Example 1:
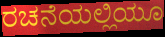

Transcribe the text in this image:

ರಚನೆಯಲ್ಲಿಯೂ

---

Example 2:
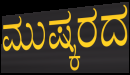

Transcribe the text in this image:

ಮುಷ್ಕರದ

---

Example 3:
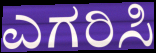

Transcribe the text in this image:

ಎಗರಿಸಿ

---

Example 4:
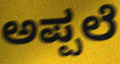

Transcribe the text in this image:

ಅಪ್ಪಲೆ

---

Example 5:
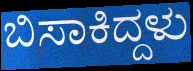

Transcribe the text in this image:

ಬಿಸಾಕಿದ್ದಳು